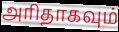
அரிதாகவும்